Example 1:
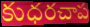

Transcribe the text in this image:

కుధరచాప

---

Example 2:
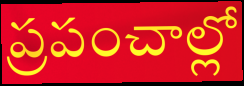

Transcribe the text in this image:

ప్రపంచాల్లో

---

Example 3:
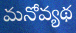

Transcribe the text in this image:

మనోవ్యథ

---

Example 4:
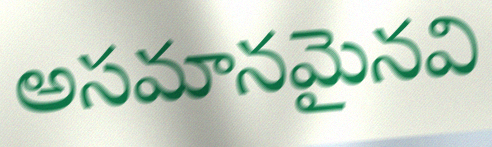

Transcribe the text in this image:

అసమానమైనవి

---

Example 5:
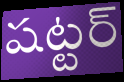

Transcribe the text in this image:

షట్టర్